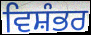
ਵਿਸ਼ੰਭਰ